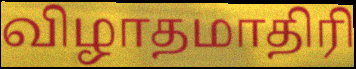
விழாதமாதிரி